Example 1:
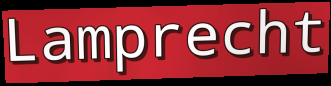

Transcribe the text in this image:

Lamprecht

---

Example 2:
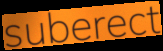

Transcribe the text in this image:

suberect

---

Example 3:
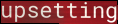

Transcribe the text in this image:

upsetting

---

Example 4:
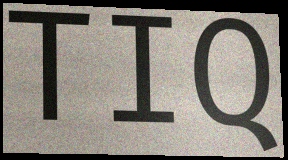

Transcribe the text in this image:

TIQ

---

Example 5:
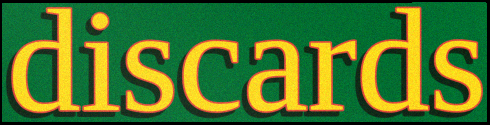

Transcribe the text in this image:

discards